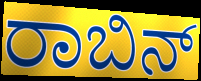
ರಾಬಿನ್